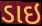
ડાઇ